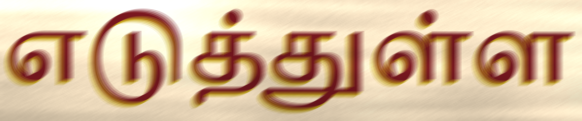
எடுத்துள்ள